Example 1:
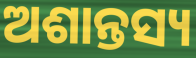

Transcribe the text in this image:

ଅଶାନ୍ତସ୍ୟ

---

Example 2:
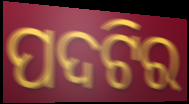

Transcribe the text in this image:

ପଦଟିର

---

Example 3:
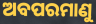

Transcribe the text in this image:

ଅବପରମାଣୁ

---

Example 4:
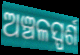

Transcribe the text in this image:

ଅଞ୍ଚଳସ୍ପର୍ଶ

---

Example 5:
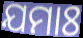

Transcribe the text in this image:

ଯମାଃ